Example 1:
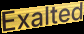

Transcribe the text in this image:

Exalted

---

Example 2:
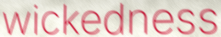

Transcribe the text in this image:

wickedness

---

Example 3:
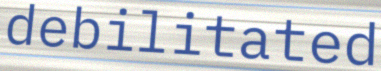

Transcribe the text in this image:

debilitated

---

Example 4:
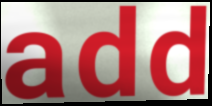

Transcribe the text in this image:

add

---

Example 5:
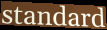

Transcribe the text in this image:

standard